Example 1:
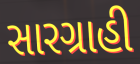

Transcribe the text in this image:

સારગ્રાહી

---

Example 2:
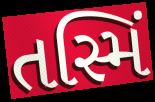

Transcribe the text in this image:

તસ્મિં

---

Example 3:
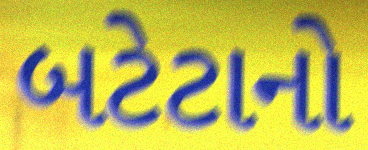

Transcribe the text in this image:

બટેટાનો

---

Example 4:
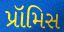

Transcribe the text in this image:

પ્રૉમિસ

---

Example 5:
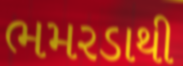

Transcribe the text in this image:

ભમરડાથી